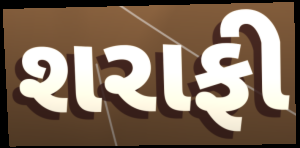
શરાફી